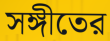
সঙ্গীতের